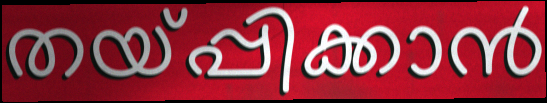
തയ്പ്പിക്കാൻ